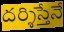
దర్శిస్తేనే